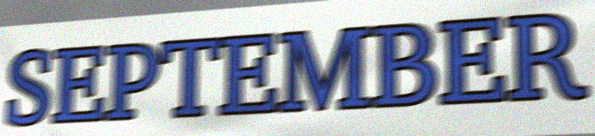
SEPTEMBER